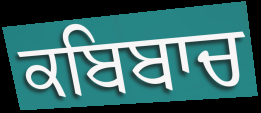
ਕਬਿਬਾਚ